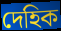
দেহিক